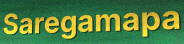
Saregamapa